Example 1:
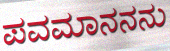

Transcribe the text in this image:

ಪವಮಾನನನು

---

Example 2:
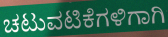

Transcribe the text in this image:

ಚಟುವಟಿಕೆಗಳಿಗಾಗಿ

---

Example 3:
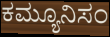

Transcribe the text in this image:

ಕಮ್ಯೂನಿಸಂ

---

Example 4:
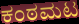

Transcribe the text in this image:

ಕಂಠಮಟ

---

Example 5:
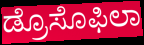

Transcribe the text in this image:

ಡ್ರೊಸೊಫಿಲಾ